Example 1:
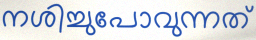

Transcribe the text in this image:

നശിച്ചുപോവുന്നത്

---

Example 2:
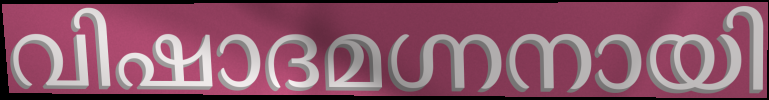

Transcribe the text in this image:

വിഷാദമഗ്നനായി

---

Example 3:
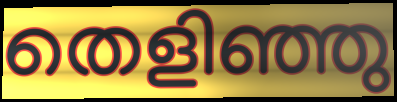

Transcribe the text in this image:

തെളിഞ്ഞു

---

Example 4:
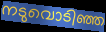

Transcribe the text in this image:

നടുവൊടിഞ്ഞ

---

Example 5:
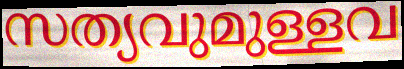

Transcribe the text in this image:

സത്യവുമുള്ളവ